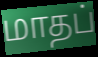
மாதப்